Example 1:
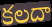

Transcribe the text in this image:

కలదా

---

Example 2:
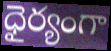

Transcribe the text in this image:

ధైర్యంగా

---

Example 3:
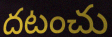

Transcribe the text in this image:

దటంచు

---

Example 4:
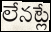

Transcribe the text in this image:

లేనట్లే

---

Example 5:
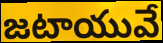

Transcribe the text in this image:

జటాయువే